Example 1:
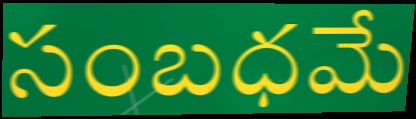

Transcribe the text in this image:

సంబధమే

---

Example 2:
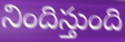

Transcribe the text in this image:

నిందిస్తుంది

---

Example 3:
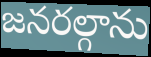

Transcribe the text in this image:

జనరల్గాను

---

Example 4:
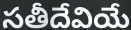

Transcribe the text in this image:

సతీదేవియే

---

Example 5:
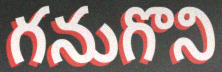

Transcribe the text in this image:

గనుగొని